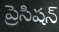
ప్రెసిషన్